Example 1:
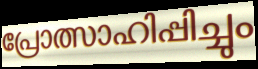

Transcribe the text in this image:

പ്രോത്സാഹിപ്പിച്ചും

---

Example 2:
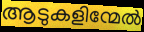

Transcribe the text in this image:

ആടുകളിന്മേൽ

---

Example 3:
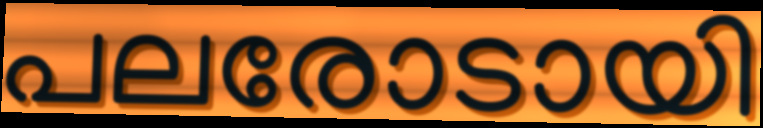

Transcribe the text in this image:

പലരോടായി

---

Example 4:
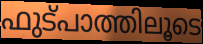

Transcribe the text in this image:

ഫുട്പാത്തിലൂടെ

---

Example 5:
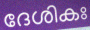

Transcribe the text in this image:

ദേശികഃ